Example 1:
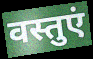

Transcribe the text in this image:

वस्तुएं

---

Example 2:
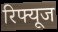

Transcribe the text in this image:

रिफ्यूज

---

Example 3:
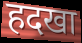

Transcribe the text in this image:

हदखा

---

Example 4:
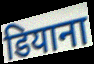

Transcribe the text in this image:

डियाना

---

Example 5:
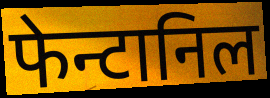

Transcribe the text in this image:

फेन्टानिल